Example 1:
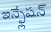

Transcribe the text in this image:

ఇన్ఫ్లేషన్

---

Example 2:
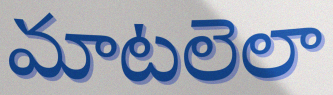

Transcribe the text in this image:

మాటలెలా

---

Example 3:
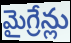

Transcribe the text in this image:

మైగ్రేన్లు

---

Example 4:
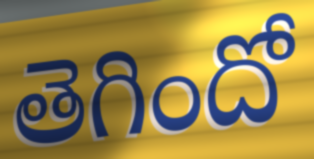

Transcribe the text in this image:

తెగిందో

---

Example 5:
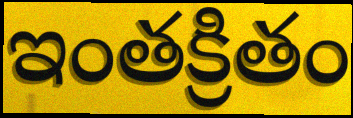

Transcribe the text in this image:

ఇంతక్రితం